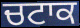
ਚਟਾਕ